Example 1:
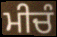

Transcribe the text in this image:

ਮੀਚੰ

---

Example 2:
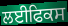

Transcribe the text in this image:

ਲਈਫਿਕਸ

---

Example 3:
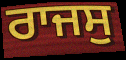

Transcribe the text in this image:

ਰਾਜਸੁ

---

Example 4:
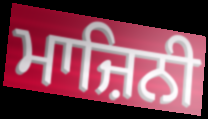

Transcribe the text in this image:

ਮਾਜ਼ਿਨੀ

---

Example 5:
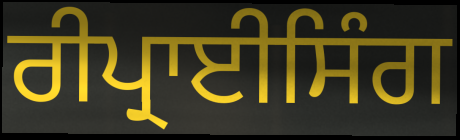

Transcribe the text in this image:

ਰੀਪ੍ਰਾਈਸਿੰਗ